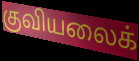
குவியலைக்